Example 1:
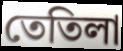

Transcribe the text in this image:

তেতিলা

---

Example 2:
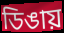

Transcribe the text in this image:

ডিঙায়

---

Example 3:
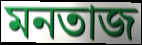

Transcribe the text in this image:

মনতাজ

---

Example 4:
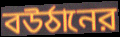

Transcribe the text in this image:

বউঠানের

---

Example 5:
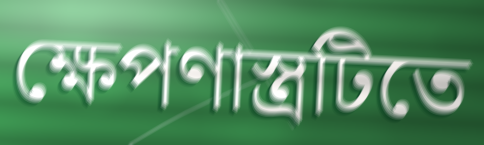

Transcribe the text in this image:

ক্ষেপণাস্ত্রটিতে